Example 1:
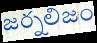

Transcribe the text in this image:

జర్నలిజం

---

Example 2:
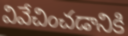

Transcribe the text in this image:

వివేచించడానికి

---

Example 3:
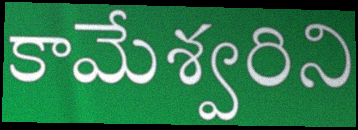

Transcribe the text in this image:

కామేశ్వరిని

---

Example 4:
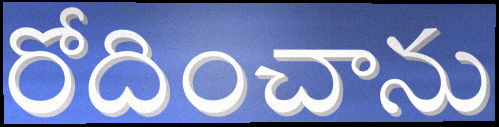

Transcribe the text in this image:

రోదించాను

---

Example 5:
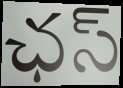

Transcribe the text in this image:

ఛస్